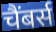
चैंबर्स